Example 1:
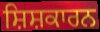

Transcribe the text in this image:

ਸ਼ਿਸ਼ਕਾਰਨ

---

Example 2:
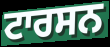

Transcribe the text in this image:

ਟਾਰਸਨ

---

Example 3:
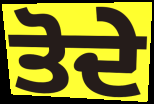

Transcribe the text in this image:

ਤੋਦੇ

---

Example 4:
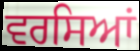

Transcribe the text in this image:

ਵਰਸਿਆਂ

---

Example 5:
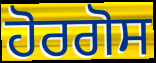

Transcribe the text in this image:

ਹੋਰਗੋਸ